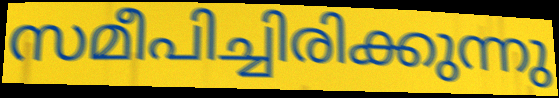
സമീപിച്ചിരിക്കുന്നു